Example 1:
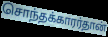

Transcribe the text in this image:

சொந்தக்காரர்தான்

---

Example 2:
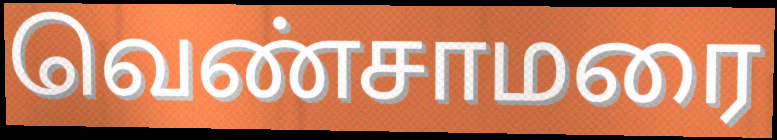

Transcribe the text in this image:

வெண்சாமரை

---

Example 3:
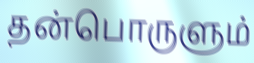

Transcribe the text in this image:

தன்பொருளும்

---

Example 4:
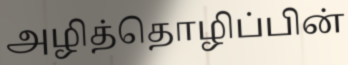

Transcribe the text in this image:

அழித்தொழிப்பின்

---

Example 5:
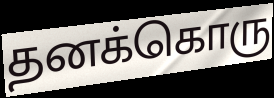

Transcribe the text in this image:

தனக்கொரு